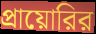
প্রায়োরির